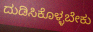
ದುಡಿಸಿಕೊಳ್ಳಬೇಕು